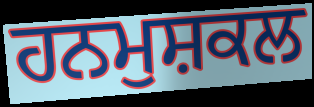
ਹਨਮੁਸ਼ਕਲ